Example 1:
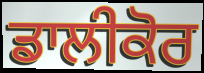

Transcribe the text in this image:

ਡਾਲੀਕੋਰ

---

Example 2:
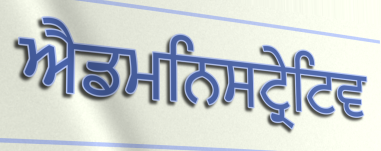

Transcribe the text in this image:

ਐਡਮਨਿਸਟ੍ਰੇਟਿਵ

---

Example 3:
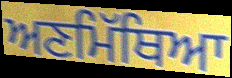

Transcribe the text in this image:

ਅਣਮਿੱਥਿਆ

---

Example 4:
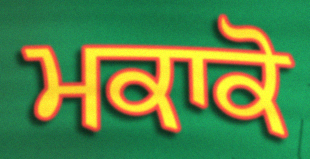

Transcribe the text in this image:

ਮਕਾਕੋ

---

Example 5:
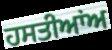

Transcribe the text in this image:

ਹਸਤੀਆਂਅ